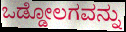
ಒಡ್ಡೋಲಗವನ್ನು